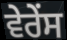
ਵੇਰੇਂਸ